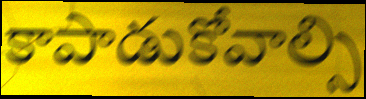
కాపాడుకోవాల్సి